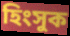
হিংসুক